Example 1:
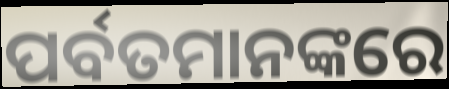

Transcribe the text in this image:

ପର୍ବତମାନଙ୍କରେ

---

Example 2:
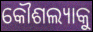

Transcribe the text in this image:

କୌଶଲ୍ୟାକୁ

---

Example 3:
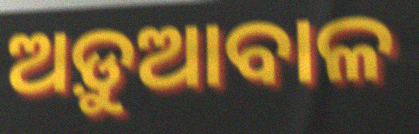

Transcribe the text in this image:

ଅଡ଼ୁଆବାଳ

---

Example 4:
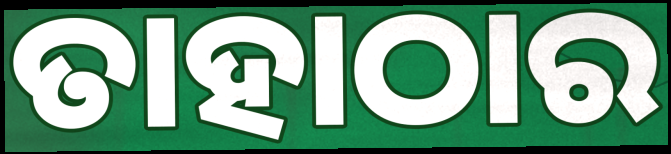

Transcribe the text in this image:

ତାହାଠାର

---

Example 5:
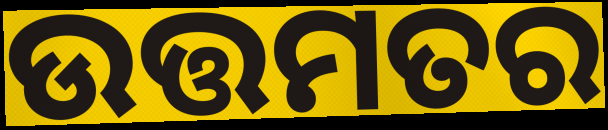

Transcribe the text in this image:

ଉତ୍ତମତର